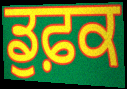
ਡੁਫ਼ਕ